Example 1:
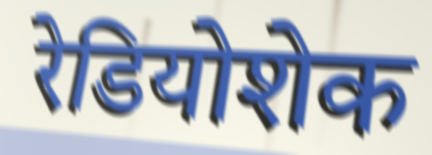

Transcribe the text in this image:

रेडियोशेक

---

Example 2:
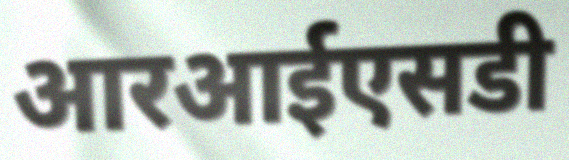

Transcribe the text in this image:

आरआईएसडी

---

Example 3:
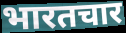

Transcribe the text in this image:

भारतचार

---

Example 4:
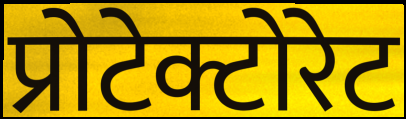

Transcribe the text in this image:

प्रोटेक्टोरेट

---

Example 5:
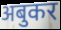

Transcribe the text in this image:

अबुकर